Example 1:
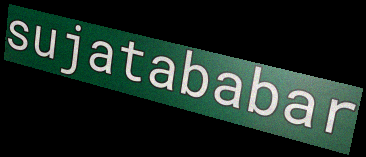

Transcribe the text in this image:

sujatababar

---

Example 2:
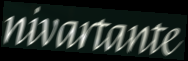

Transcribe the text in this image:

nivartante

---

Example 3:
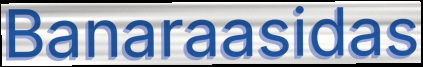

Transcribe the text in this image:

Banaraasidas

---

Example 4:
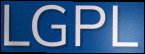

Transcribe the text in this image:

LGPL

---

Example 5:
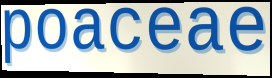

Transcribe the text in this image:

poaceae